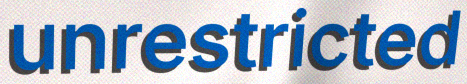
unrestricted